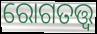
ରୋଗତତ୍ତ୍ୱ